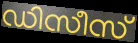
ഡിസീസ്